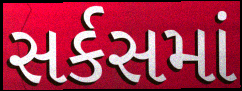
સર્કસમાં